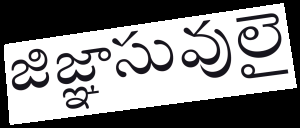
జిజ్ఞాసువులై